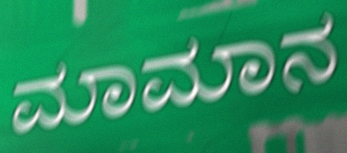
ಮಾಮಾನ